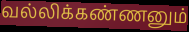
வல்லிக்கண்ணனும்